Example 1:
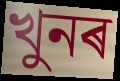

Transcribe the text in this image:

খুনৰ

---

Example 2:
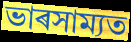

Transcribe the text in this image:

ভাৰসাম্যত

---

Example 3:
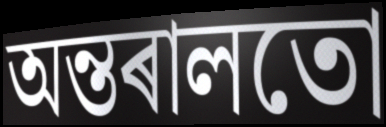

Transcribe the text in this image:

অন্তৰালতো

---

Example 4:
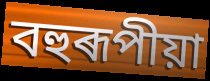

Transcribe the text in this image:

বহুৰূপীয়া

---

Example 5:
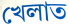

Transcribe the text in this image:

খেলাত